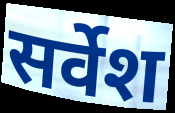
सर्वेश